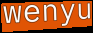
wenyu